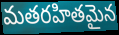
మతరహితమైన